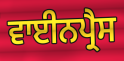
ਵਾਈਨਪ੍ਰੈਸ